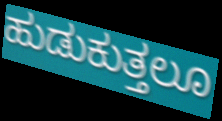
ಹುಡುಕುತ್ತಲೂ